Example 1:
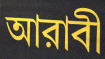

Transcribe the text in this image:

আরাবী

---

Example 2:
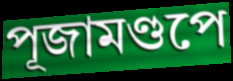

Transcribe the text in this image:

পূজামণ্ডপে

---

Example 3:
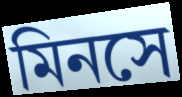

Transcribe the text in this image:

মিনসে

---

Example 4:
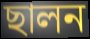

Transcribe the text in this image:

ছালন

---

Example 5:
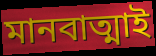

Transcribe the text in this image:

মানবাত্মাই